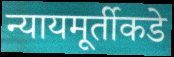
न्यायमूर्तीकडे